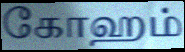
கோஹம்